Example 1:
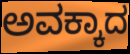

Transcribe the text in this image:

ಅವಕ್ಕಾದ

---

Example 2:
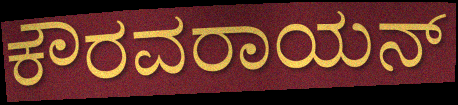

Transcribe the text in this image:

ಕೌರವರಾಯನ್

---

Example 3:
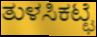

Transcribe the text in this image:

ತುಳಸಿಕಟ್ಟೆ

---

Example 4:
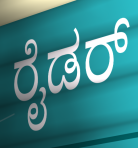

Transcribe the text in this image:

ರೈಡರ್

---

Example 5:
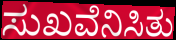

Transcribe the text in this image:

ಸುಖವೆನಿಸಿತು